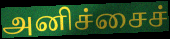
அனிச்சைச்